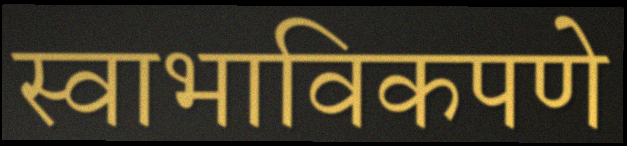
स्वाभाविकपणे